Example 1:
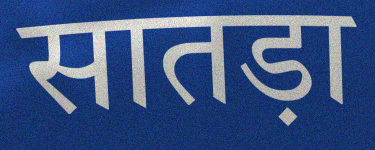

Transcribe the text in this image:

सातड़ा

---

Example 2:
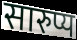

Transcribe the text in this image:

सारुप्य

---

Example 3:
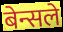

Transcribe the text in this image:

बेन्सले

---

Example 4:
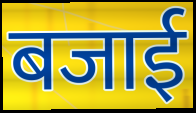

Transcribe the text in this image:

बजाई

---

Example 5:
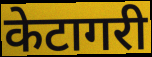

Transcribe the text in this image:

केटागरी